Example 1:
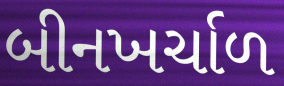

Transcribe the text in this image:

બીનખર્ચાળ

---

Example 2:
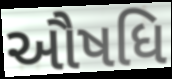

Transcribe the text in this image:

ઔષધિ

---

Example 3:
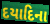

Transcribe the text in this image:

દયાદિના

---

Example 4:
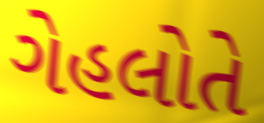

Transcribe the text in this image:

ગેહલોતે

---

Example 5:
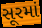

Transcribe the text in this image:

સૂરમાં